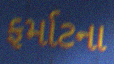
ફર્માટના